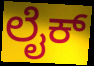
ಲೈಕ್